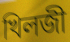
খিলজী